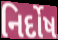
નિર્દોષ